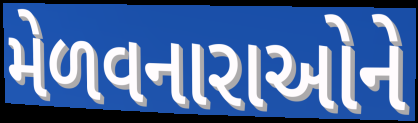
મેળવનારાઓને